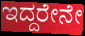
ಇದ್ದರೇನೇ